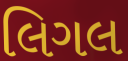
લિગલ